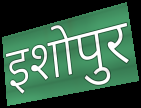
इशोपुर